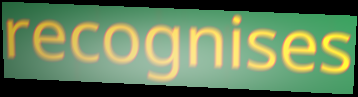
recognises